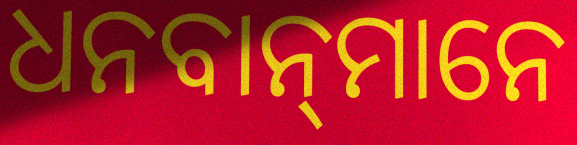
ଧନବାନ୍‍ମାନେ